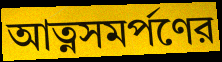
আত্নসমর্পণের